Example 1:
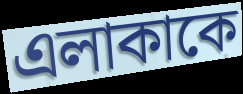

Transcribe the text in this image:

এলাকাকে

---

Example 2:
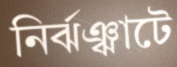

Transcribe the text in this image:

নির্ঝঞ্ঝাটে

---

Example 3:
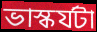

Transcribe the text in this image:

ভাস্কর্যটা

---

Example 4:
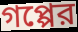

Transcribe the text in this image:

গপ্পের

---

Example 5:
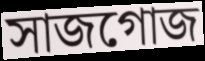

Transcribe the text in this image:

সাজগোজ